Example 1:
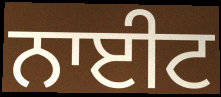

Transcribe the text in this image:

ਨਾਈਟ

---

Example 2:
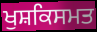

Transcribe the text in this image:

ਖੁਸ਼ਕਿਸਮਤ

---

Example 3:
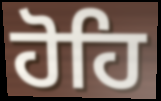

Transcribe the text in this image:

ਹੋਹਿ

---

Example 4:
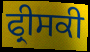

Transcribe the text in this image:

ਫ੍ਰੀਸਕੀ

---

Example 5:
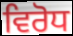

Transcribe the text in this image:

ਵਿਰੋਧ